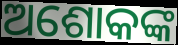
ଅଶୋକଙ୍କ